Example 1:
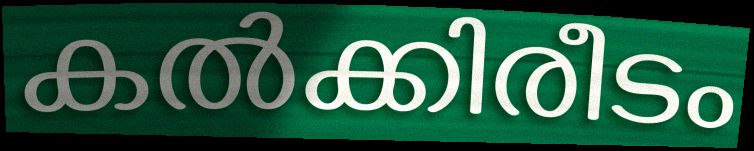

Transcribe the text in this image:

കൽക്കിരീടം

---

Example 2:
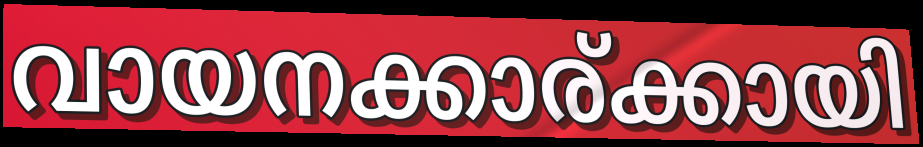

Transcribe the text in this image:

വായനക്കാര്ക്കായി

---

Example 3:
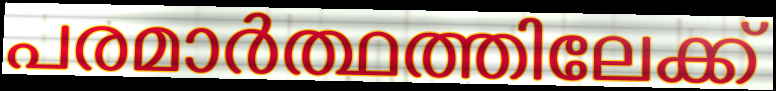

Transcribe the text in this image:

പരമാർത്ഥത്തിലേക്ക്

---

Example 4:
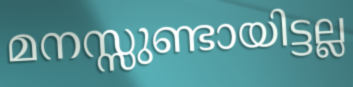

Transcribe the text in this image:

മനസ്സുണ്ടായിട്ടല്ല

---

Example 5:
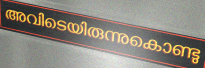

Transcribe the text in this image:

അവിടെയിരുന്നുകൊണ്ടു